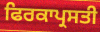
ਫਿਰਕਾਪ੍ਰਸਤੀ